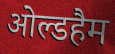
ओल्डहैम